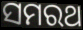
ସମରଥ